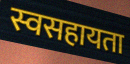
स्‍वसहायता